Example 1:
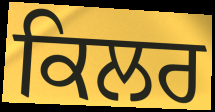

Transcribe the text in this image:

ਕਿਲਰ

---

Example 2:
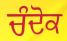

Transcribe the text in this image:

ਚੰਦੋਕ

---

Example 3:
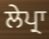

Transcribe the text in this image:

ਲੇਪ੍ਰਾ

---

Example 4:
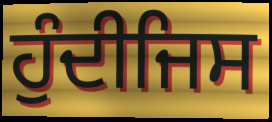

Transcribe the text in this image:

ਹੁੰਦੀਜਿਸ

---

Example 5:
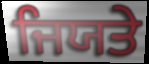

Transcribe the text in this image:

ਜਿਯਤੇ